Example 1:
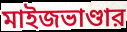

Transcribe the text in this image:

মাইজভাণ্ডার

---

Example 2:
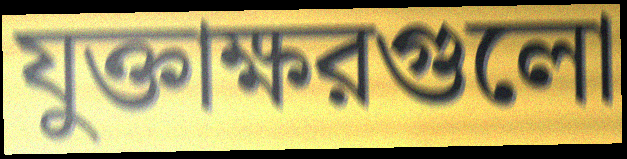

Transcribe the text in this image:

যুক্তাক্ষরগুলো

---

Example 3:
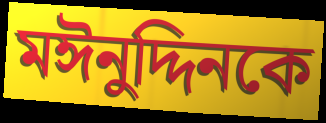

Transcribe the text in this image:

মঈনুদ্দিনকে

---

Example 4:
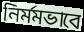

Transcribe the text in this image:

নির্মমভাবে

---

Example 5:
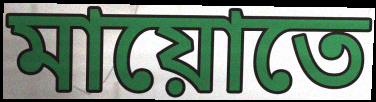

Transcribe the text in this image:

মায়োতে